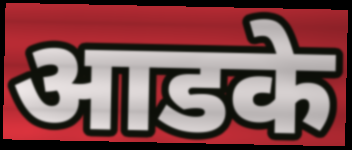
आडके